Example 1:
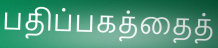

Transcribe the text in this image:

பதிப்பகத்தைத்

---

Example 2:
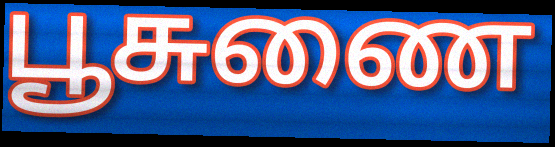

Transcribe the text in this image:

பூசுணை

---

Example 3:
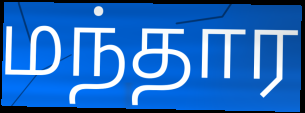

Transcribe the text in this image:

மந்தார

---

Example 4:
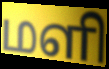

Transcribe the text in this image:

மளி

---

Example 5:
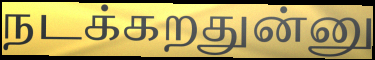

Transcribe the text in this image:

நடக்கறதுன்னு